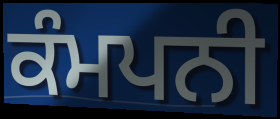
ਕੰਮਪਨੀ